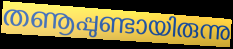
തണൂപ്പുണ്ടായിരുന്നു